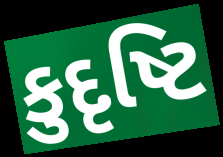
કુદૃષ્ટિ